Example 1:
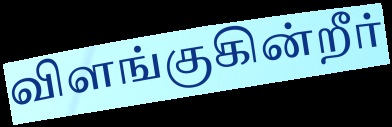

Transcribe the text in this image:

விளங்குகின்றீர்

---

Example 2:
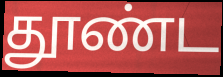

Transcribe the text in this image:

தூண்ட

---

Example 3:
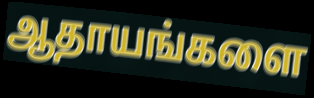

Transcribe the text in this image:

ஆதாயங்களை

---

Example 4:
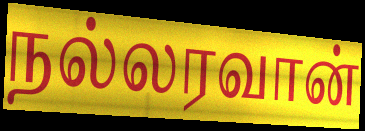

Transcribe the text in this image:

நல்லரவான்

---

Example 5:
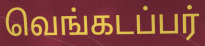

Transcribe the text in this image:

வெங்கடப்பர்